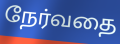
நேர்வதை